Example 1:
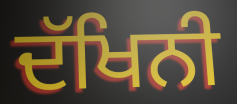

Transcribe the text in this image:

ਦੱਖਿਨੀ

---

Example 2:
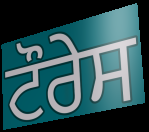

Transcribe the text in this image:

ਟੌਰੇਸ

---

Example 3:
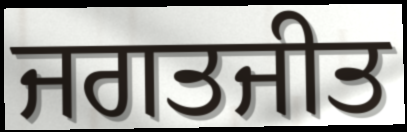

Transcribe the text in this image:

ਜਗਤਜੀਤ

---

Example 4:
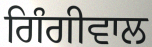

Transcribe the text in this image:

ਗਿੰਗੀਵਾਲ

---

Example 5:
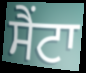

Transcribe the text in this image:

ਸੈਂਟਾ